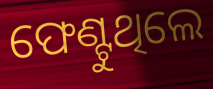
ଫେଣ୍ଟୁଥିଲେ